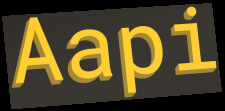
Aapi